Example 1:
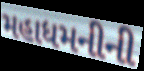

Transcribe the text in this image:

મહાધમનીની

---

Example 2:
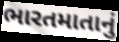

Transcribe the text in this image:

ભારતમાતાનું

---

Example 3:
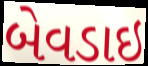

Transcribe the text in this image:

બેવડાઇ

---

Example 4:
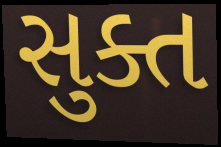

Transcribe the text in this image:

સુક્ત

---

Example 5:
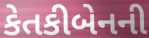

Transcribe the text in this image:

કેતકીબેનની